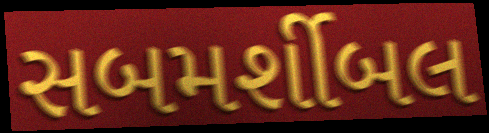
સબમર્શીબલ